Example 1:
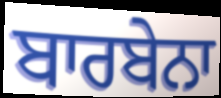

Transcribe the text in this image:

ਬਾਰਬੇਨਾ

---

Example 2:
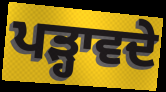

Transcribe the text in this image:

ਪੜ੍ਹਾਵਦੇ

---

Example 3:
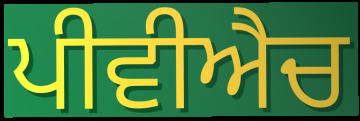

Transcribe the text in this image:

ਪੀਵੀਐਚ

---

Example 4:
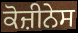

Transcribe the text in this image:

ਕੋਜ਼ੀਨੇਸ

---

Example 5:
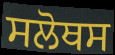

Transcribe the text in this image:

ਸਲੋਥਸ